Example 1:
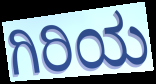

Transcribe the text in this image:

ಗಿರಿಯ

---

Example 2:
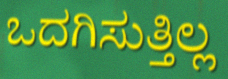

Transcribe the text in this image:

ಒದಗಿಸುತ್ತಿಲ್ಲ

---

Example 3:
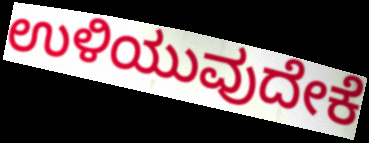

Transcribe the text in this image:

ಉಳಿಯುವುದೇಕೆ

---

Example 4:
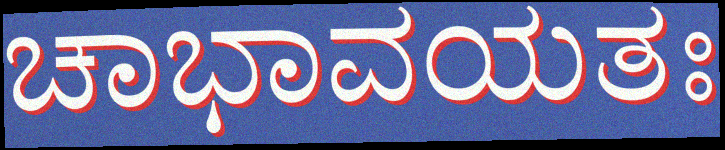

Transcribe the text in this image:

ಚಾಭಾವಯತಃ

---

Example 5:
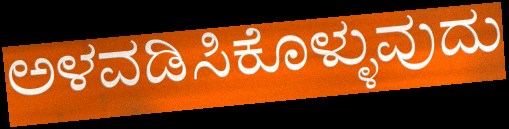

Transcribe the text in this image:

ಅಳವಡಿಸಿಕೊಳ್ಳುವುದು